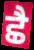
ਛੈ